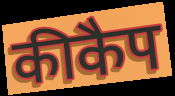
कीकैप